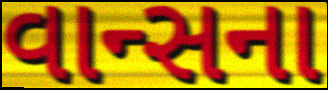
વાન્સના